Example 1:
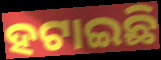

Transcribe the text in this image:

ହଟାଇଛି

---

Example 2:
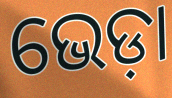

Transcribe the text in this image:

ଭେଡ଼ା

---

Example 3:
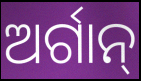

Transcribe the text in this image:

ଅର୍ଗାନ୍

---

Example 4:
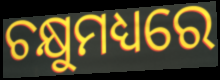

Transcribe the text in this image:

ଚକ୍ଷୁମଧ୍ଯରେ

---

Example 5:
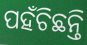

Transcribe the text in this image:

ପହଁଚିଛନ୍ତି